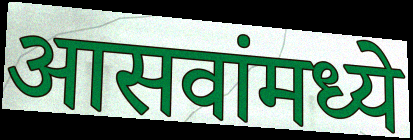
आसवांमध्ये